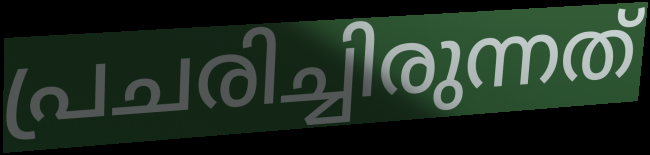
പ്രചരിച്ചിരുന്നത്